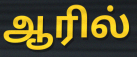
ஆரில்